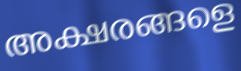
അക്ഷരങ്ങളെ